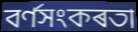
বৰ্ণসংকৰতা